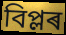
বিপ্লৰ